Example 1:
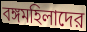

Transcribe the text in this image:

বঙ্গমহিলাদের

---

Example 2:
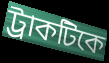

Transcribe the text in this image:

ট্রাকটিকে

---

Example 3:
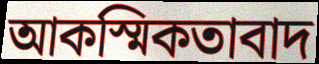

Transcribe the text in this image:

আকস্মিকতাবাদ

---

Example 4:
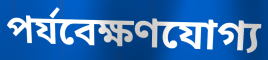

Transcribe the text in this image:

পর্যবেক্ষণযোগ্য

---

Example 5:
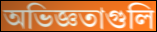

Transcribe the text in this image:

অভিজ্ঞতাগুলি